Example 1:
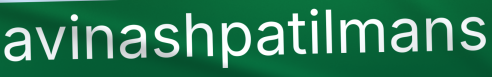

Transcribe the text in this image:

avinashpatilmans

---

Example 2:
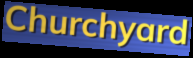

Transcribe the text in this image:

Churchyard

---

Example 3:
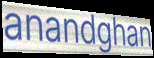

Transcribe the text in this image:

anandghan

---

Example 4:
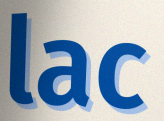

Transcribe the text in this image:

lac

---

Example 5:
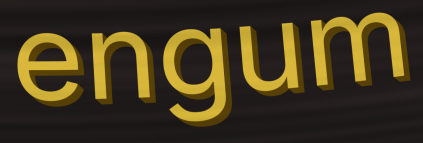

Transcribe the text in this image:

engum